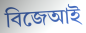
বিজেআই